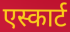
एस्कार्ट